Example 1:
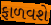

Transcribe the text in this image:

ફાળવશે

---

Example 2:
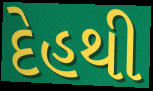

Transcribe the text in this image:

દેહથી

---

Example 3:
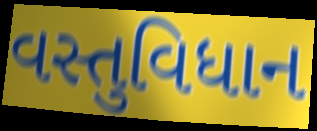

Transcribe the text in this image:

વસ્તુવિધાન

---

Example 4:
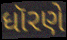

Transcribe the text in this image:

ધૉરણે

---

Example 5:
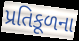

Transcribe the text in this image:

પ્રતિકૂળના